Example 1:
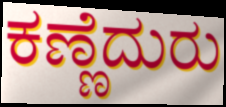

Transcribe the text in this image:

ಕಣ್ಣೆದುರು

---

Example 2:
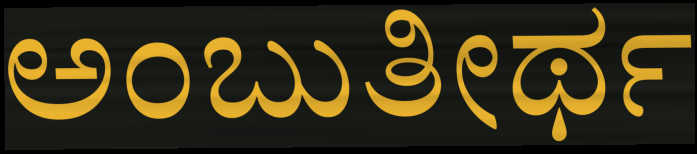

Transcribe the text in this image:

ಅಂಬುತೀರ್ಥ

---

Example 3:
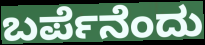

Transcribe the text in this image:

ಬರ್ಪೆನೆಂದು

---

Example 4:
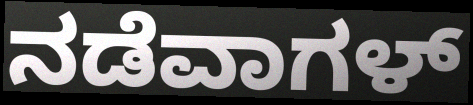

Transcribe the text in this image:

ನಡೆವಾಗಳ್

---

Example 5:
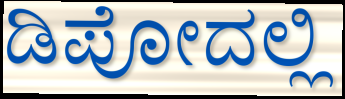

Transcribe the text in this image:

ಡಿಪೋದಲ್ಲಿ